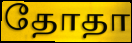
தோதா